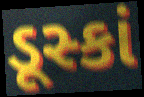
ડૂસ્કાં